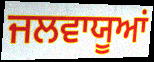
ਜਲਵਾਯੂਆਂ